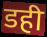
डही